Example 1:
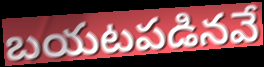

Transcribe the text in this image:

బయటపడినవే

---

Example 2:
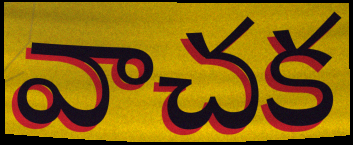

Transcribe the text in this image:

వాచక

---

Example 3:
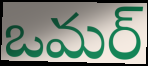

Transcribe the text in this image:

ఒమర్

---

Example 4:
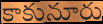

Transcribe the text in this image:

కాకునూరు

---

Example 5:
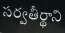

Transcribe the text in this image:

సర్వతీర్థాని